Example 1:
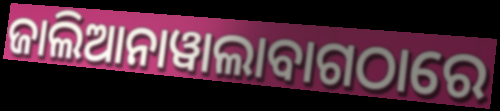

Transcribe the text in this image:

ଜାଲିଆନାୱାଲାବାଗଠାରେ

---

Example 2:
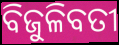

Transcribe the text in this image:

ବିଜୁଳିବତୀ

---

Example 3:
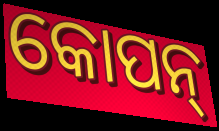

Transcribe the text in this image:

କୋପନ୍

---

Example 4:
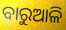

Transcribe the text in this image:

ବାରୁଆଳି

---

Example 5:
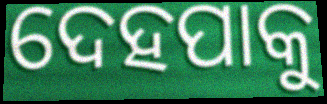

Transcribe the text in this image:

ଦେହପାକୁ